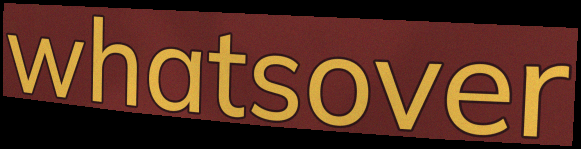
whatsover